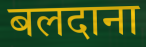
बलदाना